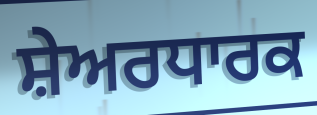
ਸ਼ੇਅਰਧਾਰਕ